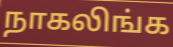
நாகலிங்க